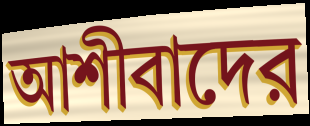
আশীবাদের